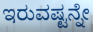
ಇರುವಷ್ಟನ್ನೇ